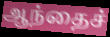
ஆந்தைச்